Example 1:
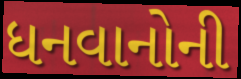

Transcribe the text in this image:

ધનવાનોની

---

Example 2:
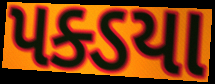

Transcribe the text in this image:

પક્ડયા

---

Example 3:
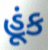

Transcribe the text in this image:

હૂંક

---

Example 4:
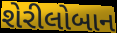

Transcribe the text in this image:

શેરીલોબાન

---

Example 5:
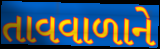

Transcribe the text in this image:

તાવવાળાને